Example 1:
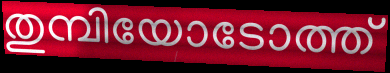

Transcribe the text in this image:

തുമ്പിയോടോത്ത്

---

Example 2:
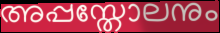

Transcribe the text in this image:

അപ്പസ്തോലനും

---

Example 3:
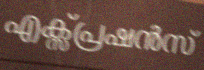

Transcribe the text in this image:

എക്സ്പ്രഷൻസ്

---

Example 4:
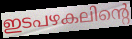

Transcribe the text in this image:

ഇടപഴകലിന്റെ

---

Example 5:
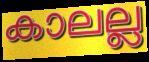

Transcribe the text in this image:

കാലല്ല